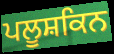
ਪਲੂਸ਼ਕਿਨ